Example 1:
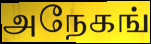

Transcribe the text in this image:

அநேகங்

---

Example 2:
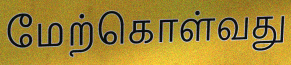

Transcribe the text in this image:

மேற்கொள்வது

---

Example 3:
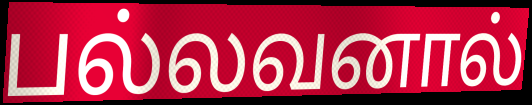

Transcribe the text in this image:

பல்லவனால்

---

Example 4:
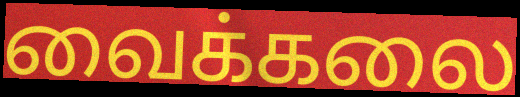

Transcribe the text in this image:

வைக்கலை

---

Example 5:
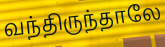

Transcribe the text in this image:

வந்திருந்தாலே